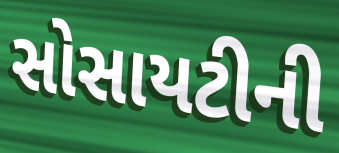
સોસાયટીની